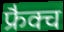
फ्रैक्च